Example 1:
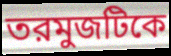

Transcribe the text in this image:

তরমুজটিকে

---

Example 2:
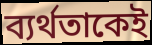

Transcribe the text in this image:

ব্যর্থতাকেই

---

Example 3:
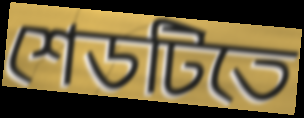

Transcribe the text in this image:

শেডটিতে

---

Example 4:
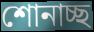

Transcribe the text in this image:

শোনাচ্ছ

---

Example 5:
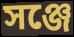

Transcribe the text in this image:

সঞ্জে